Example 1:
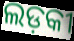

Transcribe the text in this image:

ଲଡ଼କୀ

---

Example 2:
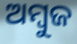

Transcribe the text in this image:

ଅମ୍ବୁଜ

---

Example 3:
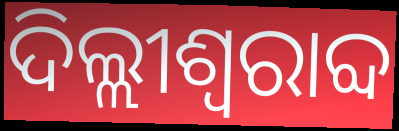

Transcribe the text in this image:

ଦିଲ୍ଲୀଶ୍ୱରାବ୍ଦ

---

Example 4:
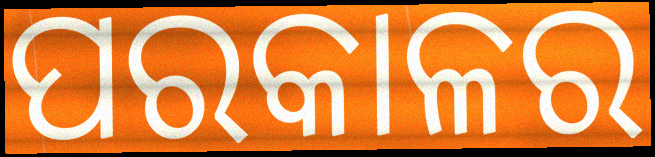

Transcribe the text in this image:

ପରକାଳର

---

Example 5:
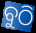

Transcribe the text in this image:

ବୁଠି